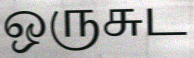
ஒருசுட